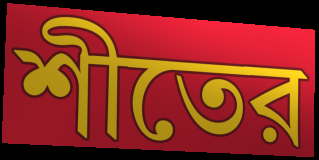
শীতের